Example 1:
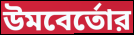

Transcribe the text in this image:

উমবের্তোর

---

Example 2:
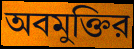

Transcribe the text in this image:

অবমুক্তির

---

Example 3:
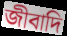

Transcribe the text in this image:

জীবাদি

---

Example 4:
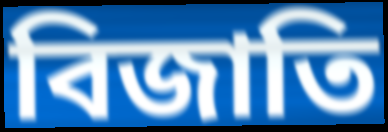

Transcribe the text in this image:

বিজাতি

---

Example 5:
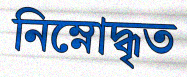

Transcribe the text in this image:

নিম্নোদ্ধৃত